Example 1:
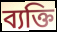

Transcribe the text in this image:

ব্যক্তি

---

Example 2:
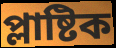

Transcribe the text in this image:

প্লাষ্টিক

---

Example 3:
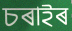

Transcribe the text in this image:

চৰাইৰ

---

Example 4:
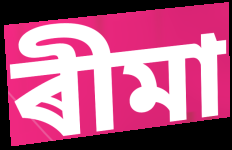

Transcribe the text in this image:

ৰীমা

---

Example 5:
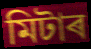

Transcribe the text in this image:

মিটাৰ